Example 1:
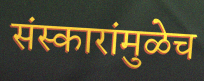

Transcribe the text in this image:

संस्कारांमुळेच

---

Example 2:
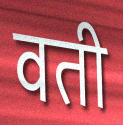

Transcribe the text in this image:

वती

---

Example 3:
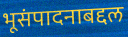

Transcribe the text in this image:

भूसंपादनाबद्दल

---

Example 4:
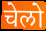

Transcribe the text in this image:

चेलो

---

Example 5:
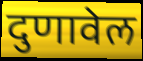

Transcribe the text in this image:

दुणावेल